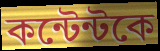
কন্টেন্টকে